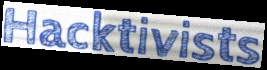
Hacktivists